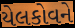
યેલકોવને